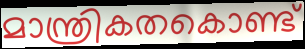
മാന്ത്രികതകൊണ്ട്